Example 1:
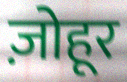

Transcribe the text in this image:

ज़ोहूर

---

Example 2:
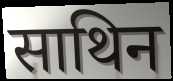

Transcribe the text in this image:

साथिन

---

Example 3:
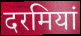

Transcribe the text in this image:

दरमियां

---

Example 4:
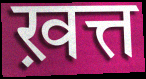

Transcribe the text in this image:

ख़त्त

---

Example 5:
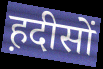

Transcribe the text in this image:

ह़दीसों